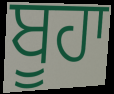
ਬੂਹਾ